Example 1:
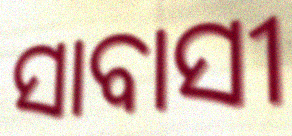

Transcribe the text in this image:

ସାବାସୀ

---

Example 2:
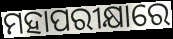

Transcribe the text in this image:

ମହାପରୀକ୍ଷାରେ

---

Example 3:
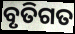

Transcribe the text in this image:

ବୃତିଗତ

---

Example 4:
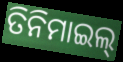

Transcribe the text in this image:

ତିନିମାଇଲ୍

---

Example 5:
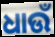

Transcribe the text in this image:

ଧାଉଁ